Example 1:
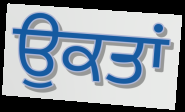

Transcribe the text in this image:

ਉਕਤਾਂ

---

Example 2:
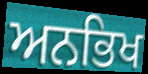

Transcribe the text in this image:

ਅਨਭਿਖ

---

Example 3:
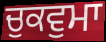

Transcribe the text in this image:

ਚੁਕਵੁਮਾ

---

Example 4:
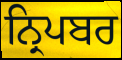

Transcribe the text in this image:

ਨ੍ਰਿਪਬਰ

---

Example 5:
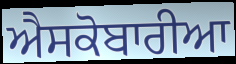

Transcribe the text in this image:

ਐਸਕੋਬਾਰੀਆ